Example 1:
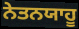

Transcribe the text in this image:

ਨੇਤਨਯਾਹੂ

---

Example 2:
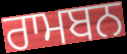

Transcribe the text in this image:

ਰਾਮਬਨ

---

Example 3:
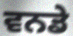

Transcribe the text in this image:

ਵਨਡੇ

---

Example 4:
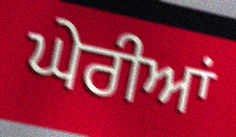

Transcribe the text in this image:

ਘੇਰੀਆਂ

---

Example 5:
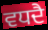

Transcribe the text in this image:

ਵਧਦੈ